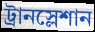
ট্রানস্লেশান